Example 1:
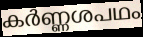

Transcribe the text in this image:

കർണ്ണശപഥം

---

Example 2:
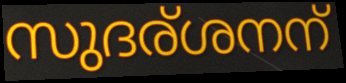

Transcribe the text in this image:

സുദര്ശനന്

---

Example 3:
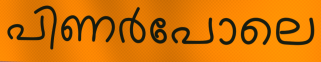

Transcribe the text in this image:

പിണർപോലെ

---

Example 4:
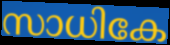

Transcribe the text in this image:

സാധികേ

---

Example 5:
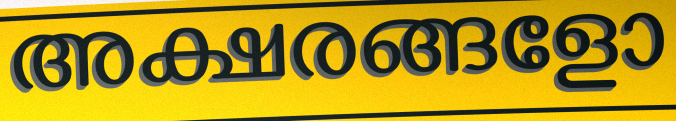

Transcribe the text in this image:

അക്ഷരങ്ങളോ